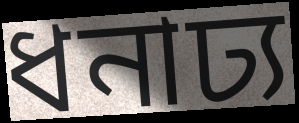
ধনাঢ্য